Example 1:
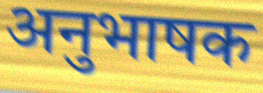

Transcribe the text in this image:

अनुभाषक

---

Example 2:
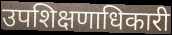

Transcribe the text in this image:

उपशिक्षणाधिकारी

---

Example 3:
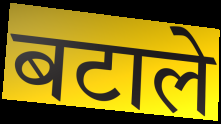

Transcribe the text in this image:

बटाले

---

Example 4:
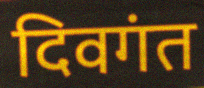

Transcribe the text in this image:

दिवगंत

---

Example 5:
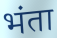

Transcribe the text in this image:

भंता